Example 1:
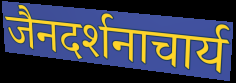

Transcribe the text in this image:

जैनदर्शनाचार्य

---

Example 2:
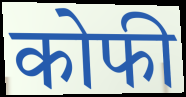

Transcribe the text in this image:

कोफी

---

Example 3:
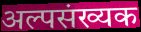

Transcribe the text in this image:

अल्‍पसंख्‍यक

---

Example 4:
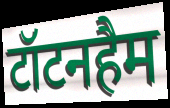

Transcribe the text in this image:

टॉटनहैम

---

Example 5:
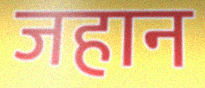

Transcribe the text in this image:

जहान